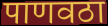
पाणवठा